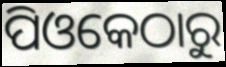
ପିଓକେଠାରୁ